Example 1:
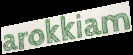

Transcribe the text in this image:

arokkiam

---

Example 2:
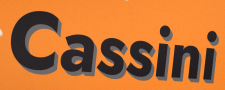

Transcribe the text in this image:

Cassini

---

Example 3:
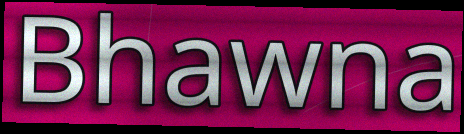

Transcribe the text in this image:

Bhawna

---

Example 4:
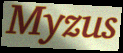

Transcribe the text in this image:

Myzus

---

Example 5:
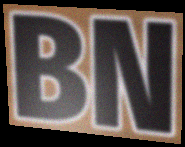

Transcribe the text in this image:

BN